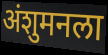
अंशुमनला